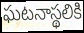
ఘటనాస్థలికి